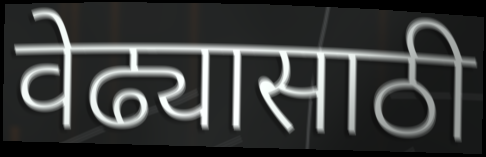
वेढ्यासाठी